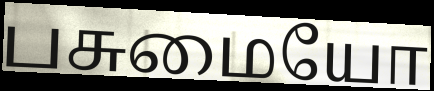
பசுமையோ